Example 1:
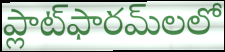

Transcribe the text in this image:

ప్లాట్‌ఫారమ్‌లలో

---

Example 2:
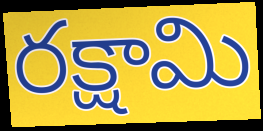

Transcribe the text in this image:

రక్షామి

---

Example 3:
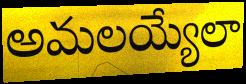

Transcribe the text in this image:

అమలయ్యేలా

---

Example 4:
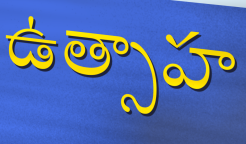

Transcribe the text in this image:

ఉత్సాహ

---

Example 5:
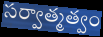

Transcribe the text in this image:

సర్వాత్మత్వం